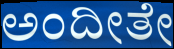
ಅಂದೀತೇ